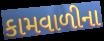
કામવાળીના